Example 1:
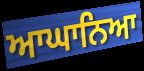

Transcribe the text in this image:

ਆਘਾਨਿਆ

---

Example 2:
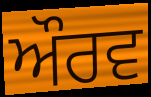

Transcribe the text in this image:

ਔਰਵ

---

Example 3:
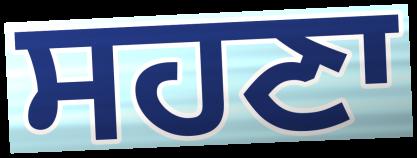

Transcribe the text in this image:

ਸਹਣਾ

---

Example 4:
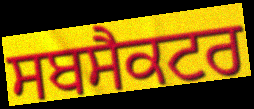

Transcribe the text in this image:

ਸਬਸੈਕਟਰ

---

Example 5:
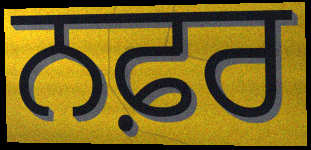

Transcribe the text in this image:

ਨਫ਼ਰ